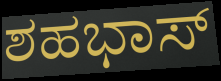
ಶಹಭಾಸ್